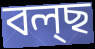
বল্‌ছ